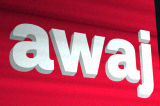
awaj